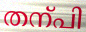
തന്പി